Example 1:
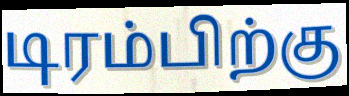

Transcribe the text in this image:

டிரம்பிற்கு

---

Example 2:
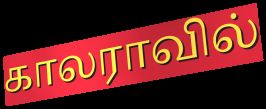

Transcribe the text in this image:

காலராவில்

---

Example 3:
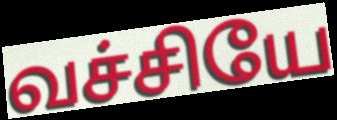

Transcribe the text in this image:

வச்சியே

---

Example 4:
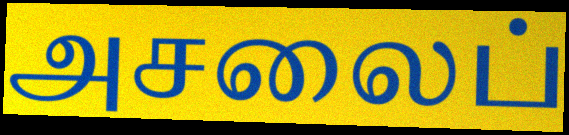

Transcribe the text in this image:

அசலைப்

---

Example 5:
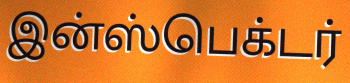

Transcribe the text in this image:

இன்ஸ்பெக்டர்